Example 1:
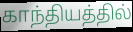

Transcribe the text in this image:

காந்தியத்தில்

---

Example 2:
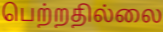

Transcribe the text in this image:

பெற்றதில்லை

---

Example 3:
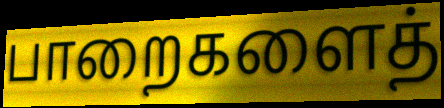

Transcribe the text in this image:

பாறைகளைத்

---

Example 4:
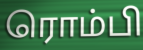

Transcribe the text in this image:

ரொம்பி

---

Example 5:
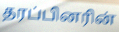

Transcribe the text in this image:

தரப்பினரின்